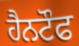
ਹੈਨਟੌਫ